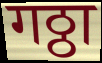
गठ्ठा